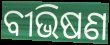
ବୀଭିଷଣ